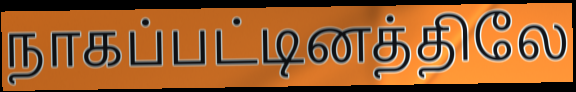
நாகப்பட்டினத்திலே